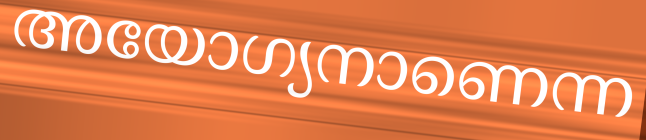
അയോഗ്യനാണെന്ന